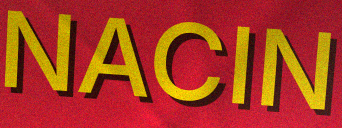
NACIN